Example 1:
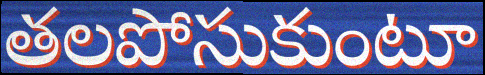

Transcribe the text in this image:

తలపోసుకుంటూ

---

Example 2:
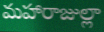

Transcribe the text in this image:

మహారాజుల్లా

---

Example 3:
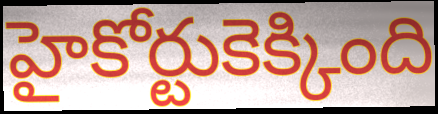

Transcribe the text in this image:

హైకోర్టుకెక్కింది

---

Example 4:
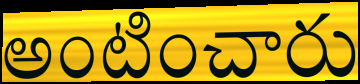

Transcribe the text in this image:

అంటించారు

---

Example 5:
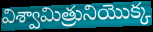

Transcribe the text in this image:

విశ్వామిత్రునియొక్క